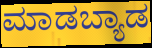
ಮಾಡಬ್ಯಾಡ